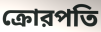
ক্রোরপতি